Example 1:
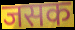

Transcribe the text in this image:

जसक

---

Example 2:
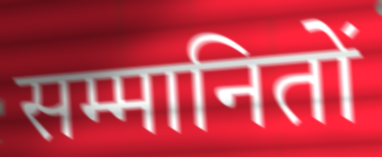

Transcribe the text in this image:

सम्मानितों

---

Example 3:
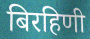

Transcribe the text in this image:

बिरहिणी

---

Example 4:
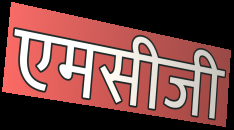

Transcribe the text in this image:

एमसीजी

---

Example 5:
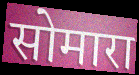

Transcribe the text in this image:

सोमारा